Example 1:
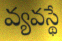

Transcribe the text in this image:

వ్యవస్థే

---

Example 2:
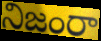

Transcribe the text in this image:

నిజంరా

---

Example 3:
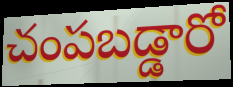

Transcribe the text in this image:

చంపబడ్డారో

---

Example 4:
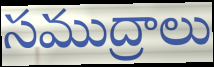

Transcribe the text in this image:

సముద్రాలు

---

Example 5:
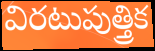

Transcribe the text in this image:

విరటుపుత్త్రిక